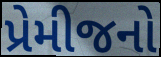
પ્રેમીજનો